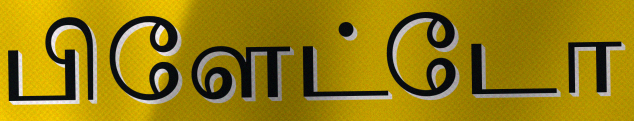
பிளேட்டோ